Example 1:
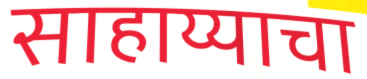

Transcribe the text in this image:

साहाय्याचा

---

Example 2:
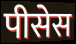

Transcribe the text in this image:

पीसेस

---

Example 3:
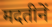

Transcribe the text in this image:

मदतीनें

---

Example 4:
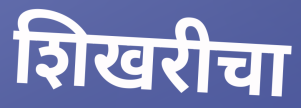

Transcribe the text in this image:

शिखरीचा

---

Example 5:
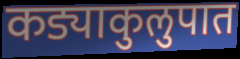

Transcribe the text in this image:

कड्याकुलुपात